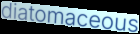
diatomaceous